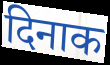
दिनाक